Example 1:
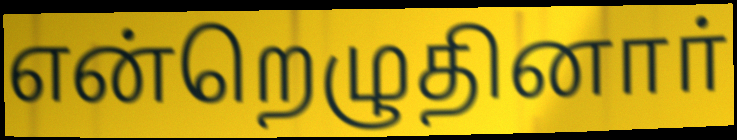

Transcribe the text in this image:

என்றெழுதினார்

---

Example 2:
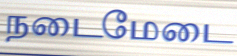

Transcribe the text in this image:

நடைமேடை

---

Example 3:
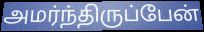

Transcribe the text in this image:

அமர்ந்திருப்பேன்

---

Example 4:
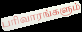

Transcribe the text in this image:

பரிவாரங்களும்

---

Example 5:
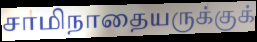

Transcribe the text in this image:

சாமிநாதையருக்குக்